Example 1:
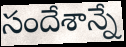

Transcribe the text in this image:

సందేశాన్నే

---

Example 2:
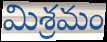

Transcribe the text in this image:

మిశ్రమం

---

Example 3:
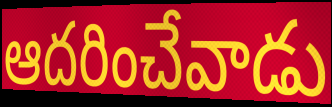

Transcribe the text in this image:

ఆదరించేవాడు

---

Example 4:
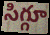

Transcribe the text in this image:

సిగ్గూ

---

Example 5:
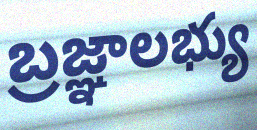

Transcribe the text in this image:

బ్రజ్ఞాలభ్యు